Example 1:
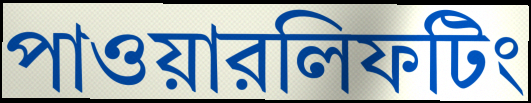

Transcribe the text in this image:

পাওয়ারলিফটিং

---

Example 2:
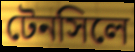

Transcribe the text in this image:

টেনসিলে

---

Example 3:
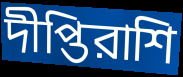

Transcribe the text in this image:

দীপ্তিরাশি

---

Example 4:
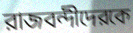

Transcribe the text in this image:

রাজবন্দীদেরকে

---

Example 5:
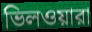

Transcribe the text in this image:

ভিলওয়ারা